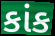
કાંક